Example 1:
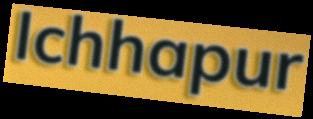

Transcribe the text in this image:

Ichhapur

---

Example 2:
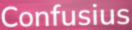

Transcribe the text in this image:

Confusius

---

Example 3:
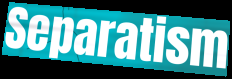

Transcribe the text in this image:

Separatism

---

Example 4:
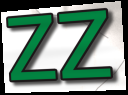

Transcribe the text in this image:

ZZ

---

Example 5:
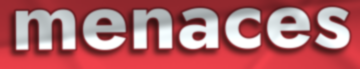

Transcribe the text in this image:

menaces